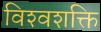
विश्वशक्ति